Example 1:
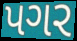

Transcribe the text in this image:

પગર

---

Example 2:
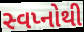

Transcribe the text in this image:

સ્વપ્નોથી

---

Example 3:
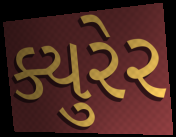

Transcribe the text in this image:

ક્યુરેર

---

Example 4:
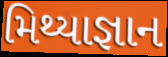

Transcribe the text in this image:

મિથ્યાજ્ઞાન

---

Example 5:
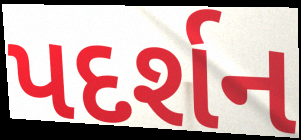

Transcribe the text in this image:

પદર્શન